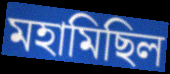
মহামিছিল